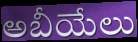
అబీయేలు